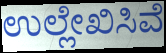
ಉಲ್ಲೇಖಿಸಿವೆ